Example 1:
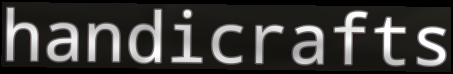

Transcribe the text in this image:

handicrafts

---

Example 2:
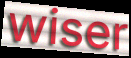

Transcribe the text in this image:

wiser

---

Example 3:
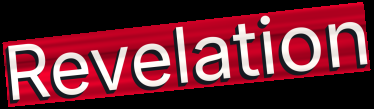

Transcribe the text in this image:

Revelation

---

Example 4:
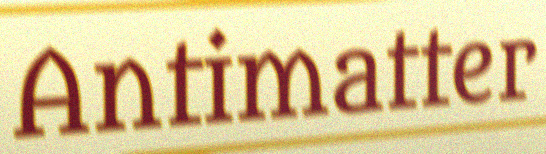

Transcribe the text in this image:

Antimatter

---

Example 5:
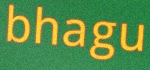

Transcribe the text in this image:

bhagu